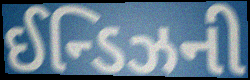
ઈન્ડિઝની